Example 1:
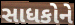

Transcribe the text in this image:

સાધકોને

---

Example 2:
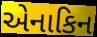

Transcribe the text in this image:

એનાકિન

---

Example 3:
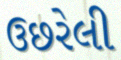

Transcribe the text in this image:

ઉછરેલી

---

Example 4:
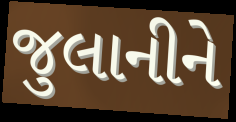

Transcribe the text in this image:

જુલાનીને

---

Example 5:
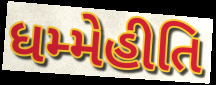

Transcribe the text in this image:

ધમ્મેહીતિ